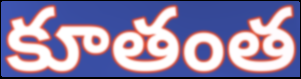
కూతంత